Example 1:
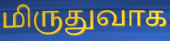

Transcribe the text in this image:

மிருதுவாக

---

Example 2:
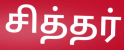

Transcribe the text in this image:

சித்தர்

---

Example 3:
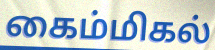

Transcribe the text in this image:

கைம்மிகல்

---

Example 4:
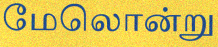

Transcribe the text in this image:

மேலொன்று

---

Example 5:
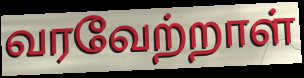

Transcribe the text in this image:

வரவேற்றாள்